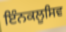
ਇੰਨਕਲੂਸਿਵ